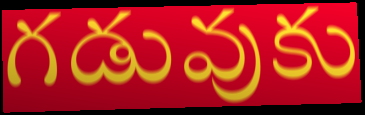
గడువుకు